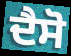
ਦੈਸੋ